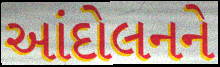
આંદોલનને